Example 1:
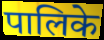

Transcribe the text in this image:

पालिके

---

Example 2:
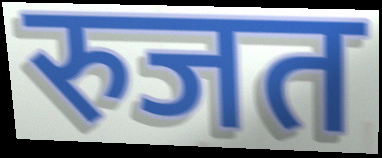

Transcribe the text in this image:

रुजत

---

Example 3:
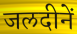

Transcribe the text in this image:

जलदीनें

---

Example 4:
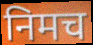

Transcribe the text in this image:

निमच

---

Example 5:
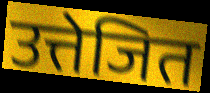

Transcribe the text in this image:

उत्तेजित